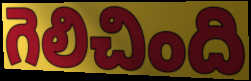
గెలిచింది